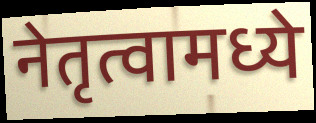
नेतृत्वामध्ये